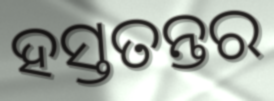
ହସ୍ତତନ୍ତର